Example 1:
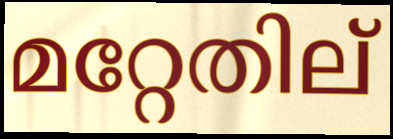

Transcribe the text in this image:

മറ്റേതില്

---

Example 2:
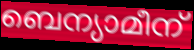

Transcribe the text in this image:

ബെന്യാമീന്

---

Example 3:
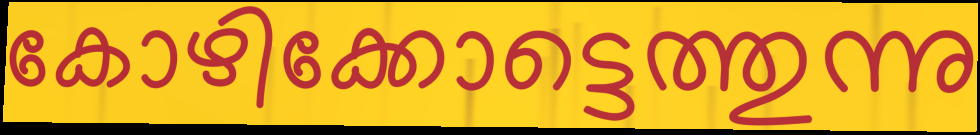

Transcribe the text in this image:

കോഴിക്കോട്ടെത്തുന്നു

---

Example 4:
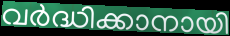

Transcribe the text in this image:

വർദ്ധിക്കാനായി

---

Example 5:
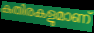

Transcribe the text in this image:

കുതിരകളുമാണ്